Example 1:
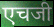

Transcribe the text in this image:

एचजी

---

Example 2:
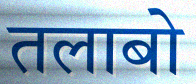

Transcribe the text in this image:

तलाबो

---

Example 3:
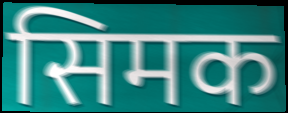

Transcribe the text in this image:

सिमक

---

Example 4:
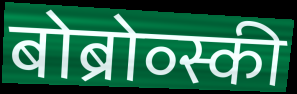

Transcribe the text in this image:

बोब्रोव्स्की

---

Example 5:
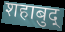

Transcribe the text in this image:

शहाबुद्